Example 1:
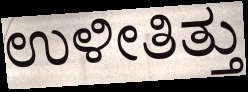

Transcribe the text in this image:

ಉಳೀತಿತ್ತು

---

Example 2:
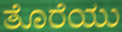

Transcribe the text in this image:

ತೊರೆಯು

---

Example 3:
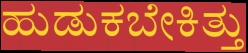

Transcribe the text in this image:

ಹುಡುಕಬೇಕಿತ್ತು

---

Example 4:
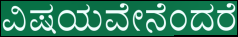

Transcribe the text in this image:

ವಿಷಯವೇನೆಂದರೆ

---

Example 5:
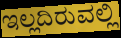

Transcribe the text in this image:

ಇಲ್ಲದಿರುವಲ್ಲಿ